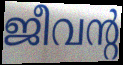
ജീവന്റ